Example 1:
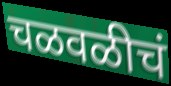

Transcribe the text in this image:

चळवळीचं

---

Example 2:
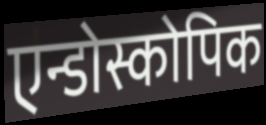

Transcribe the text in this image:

एन्डोस्कोपिक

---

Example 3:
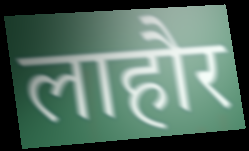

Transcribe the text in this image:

लाहौर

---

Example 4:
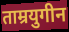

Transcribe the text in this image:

ताम्रयुगीन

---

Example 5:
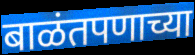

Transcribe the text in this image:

बाळंतपणाच्या